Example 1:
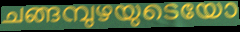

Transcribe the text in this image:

ചങ്ങമ്പുഴയുടെയോ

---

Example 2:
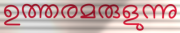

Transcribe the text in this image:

ഉത്തരമരുളുന്നു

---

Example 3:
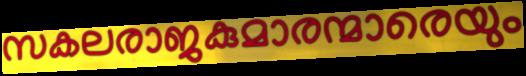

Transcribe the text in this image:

സകലരാജകുമാരന്മാരെയും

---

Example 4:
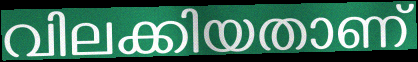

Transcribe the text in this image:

വിലക്കിയതാണ്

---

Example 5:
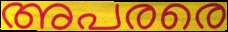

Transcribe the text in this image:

അപരരെ